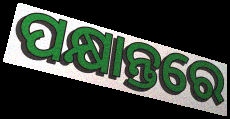
ପକ୍ଷାନ୍ତରେ